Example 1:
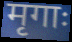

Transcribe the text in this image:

मृगाः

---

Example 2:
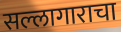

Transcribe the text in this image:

सल्लागाराचा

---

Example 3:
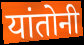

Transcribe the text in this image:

यांतोनी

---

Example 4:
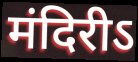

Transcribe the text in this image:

मंदिरीऽ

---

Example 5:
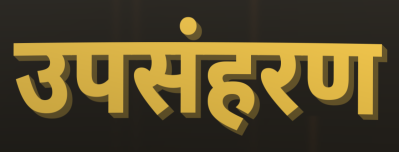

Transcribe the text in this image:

उपसंहरण